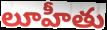
లూహీతు